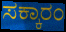
ಸಕ್ಕಾರಂ